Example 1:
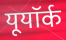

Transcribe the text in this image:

यूयॉर्क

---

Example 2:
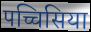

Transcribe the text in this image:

पच्चिसिया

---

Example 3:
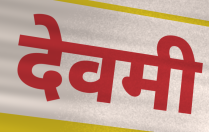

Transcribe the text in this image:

देवमी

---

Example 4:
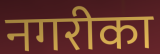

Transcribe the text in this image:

नगरीका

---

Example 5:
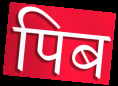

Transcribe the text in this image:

पिब